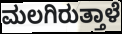
ಮಲಗಿರುತ್ತಾಳೆ